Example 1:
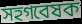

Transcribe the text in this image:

সহগবেষক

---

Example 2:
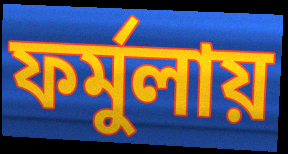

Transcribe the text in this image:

ফর্মুলায়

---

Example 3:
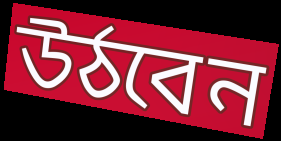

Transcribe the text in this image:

উঠবেন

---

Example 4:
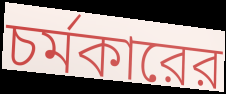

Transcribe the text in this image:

চর্মকারের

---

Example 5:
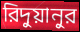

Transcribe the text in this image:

রিদুয়ানুর